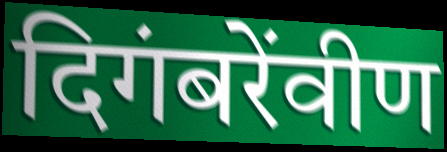
दिगंबरेंवीण